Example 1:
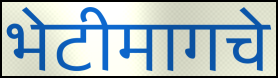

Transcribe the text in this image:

भेटीमागचे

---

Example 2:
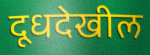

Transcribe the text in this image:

दूधदेखील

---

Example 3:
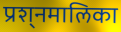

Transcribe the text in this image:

प्रश्नमालिका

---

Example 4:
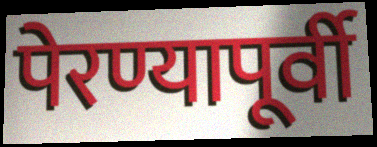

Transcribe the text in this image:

पेरण्यापूर्वी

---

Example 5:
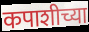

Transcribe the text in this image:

कपाशीच्या